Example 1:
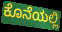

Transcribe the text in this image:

ಕೊನೆಯಲ್ಲಿ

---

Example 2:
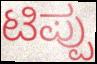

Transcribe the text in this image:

ಟಿಪ್ಪು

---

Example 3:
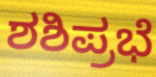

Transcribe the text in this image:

ಶಶಿಪ್ರಭೆ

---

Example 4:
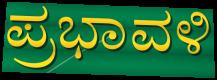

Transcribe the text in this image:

ಪ್ರಭಾವಳಿ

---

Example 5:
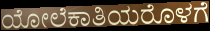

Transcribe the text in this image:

ಯೋಲೆಕಾತಿಯರೊಳಗೆ